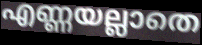
എണ്ണയല്ലാതെ